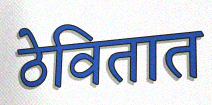
ठेवितात